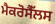
ਮੈਕਰੋਸੈੱਲਸ